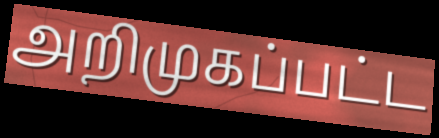
அறிமுகப்பட்ட